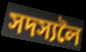
সদস্যলৈ